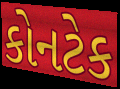
કોનટેક